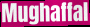
Mughaffal